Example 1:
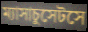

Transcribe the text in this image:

ম্যাসাচুসেটসে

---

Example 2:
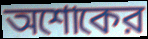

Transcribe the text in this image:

অশোকের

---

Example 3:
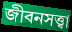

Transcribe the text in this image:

জীবনসত্ত্বা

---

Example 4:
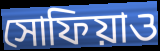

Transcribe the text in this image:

সোফিয়াও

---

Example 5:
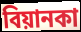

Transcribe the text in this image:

বিয়ানকা